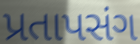
પ્રતાપસંગ